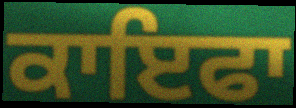
ਕਾਇਫਾ